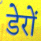
डेरों